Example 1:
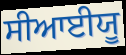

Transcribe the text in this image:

ਸੀਆਈਯੂ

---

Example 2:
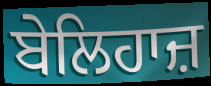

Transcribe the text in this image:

ਬੇਲਿਹਾਜ਼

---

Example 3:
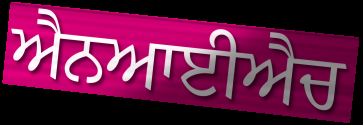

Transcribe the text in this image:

ਐਨਆਈਐਚ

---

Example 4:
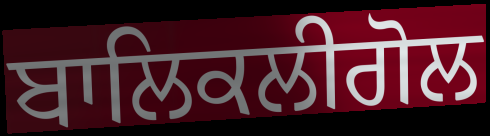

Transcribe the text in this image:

ਬਾਲਿਕਲੀਗੋਲ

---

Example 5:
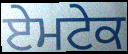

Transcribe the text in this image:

ਏਮਟੇਕ